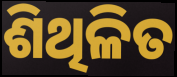
ଶିଥିଳିତ